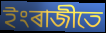
ইংৰাজীতে